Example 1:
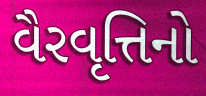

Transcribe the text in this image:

વૈરવૃત્તિનો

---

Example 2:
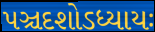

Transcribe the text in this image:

પઞ્ચદશોઽધ્યાયઃ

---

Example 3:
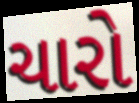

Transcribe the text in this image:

ચારો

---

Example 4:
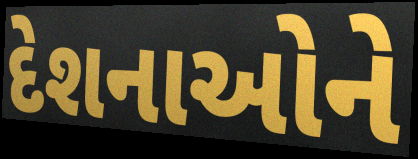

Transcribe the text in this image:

દેશનાઓને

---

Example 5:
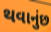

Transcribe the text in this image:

થવાનુંછ